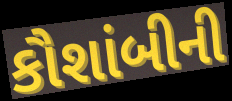
કૌશાંબીની